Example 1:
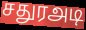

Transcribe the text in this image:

சதுரஅடி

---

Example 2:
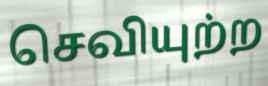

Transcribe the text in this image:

செவியுற்ற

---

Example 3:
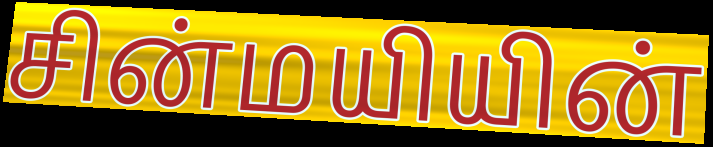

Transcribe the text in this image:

சின்மயியின்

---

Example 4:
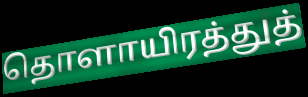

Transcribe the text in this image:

தொளாயிரத்துத்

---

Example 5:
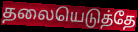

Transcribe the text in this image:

தலையெடுத்தே